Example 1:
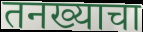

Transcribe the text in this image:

तनख्याचा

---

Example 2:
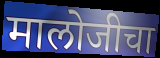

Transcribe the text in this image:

मालोजीचा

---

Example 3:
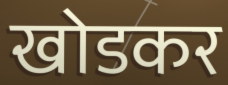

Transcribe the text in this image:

खोडकर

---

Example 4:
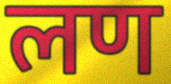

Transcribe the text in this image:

लण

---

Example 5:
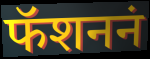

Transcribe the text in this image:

फॅशननं